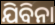
ଯିବିନା